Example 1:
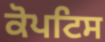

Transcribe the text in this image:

ਕੋਪਟਿਸ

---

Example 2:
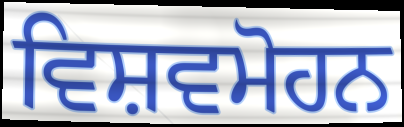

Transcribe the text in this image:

ਵਿਸ਼ਵਮੋਹਨ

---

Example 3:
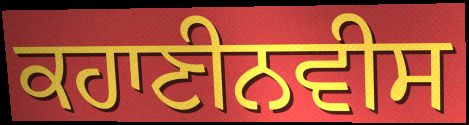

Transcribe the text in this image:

ਕਹਾਣੀਨਵੀਸ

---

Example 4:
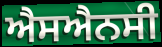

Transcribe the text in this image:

ਐਸਐਨਸੀ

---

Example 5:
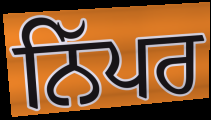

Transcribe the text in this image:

ਨਿੱਪਰ